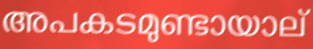
അപകടമുണ്ടായാല്